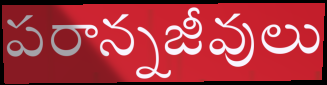
పరాన్నజీవులు